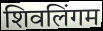
शिवलिंगम